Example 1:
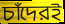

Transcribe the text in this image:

চাঁদেরই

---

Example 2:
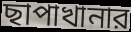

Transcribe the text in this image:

ছাপাখানার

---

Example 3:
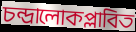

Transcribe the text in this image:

চন্দ্রালোকপ্লাবিত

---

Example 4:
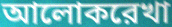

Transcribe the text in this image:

আলোকরেখা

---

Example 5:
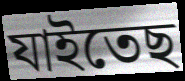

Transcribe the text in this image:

যাইতেছ